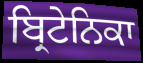
ਬ੍ਰਿਟੇਨਿਕਾ